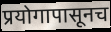
प्रयोगापासूनच